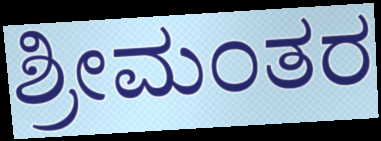
ಶ್ರೀಮಂತರ